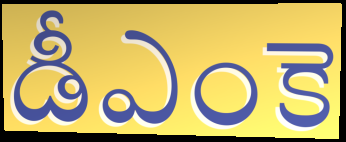
డీఎంకె